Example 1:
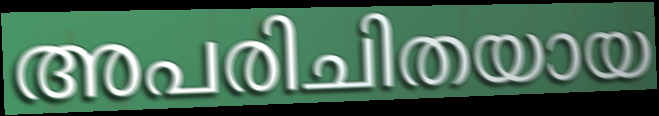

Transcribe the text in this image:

അപരിചിതയായ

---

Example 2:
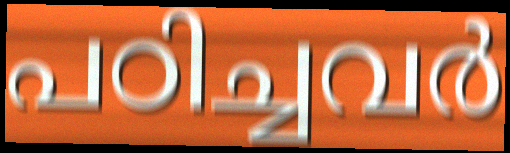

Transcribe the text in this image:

പഠിച്ചവർ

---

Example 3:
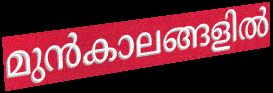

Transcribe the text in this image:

മുൻകാലങ്ങളിൽ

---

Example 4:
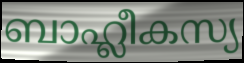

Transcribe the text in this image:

ബാഹ്ലീകസ്യ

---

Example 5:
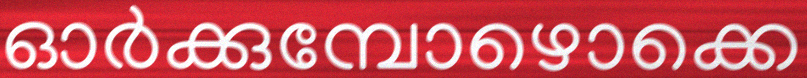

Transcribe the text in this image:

ഓർക്കുമ്പോഴൊക്കെ